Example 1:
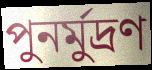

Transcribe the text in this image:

পুনর্মুদ্রণ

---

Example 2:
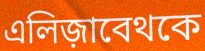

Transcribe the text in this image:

এলিজ়াবেথকে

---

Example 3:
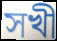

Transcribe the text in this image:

সখী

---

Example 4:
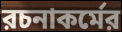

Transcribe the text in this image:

রচনাকর্মের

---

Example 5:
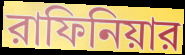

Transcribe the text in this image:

রাফিনিয়ার